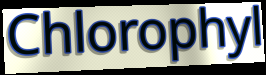
Chlorophyl